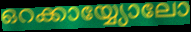
ഒറക്കായ്യ്യോലോ